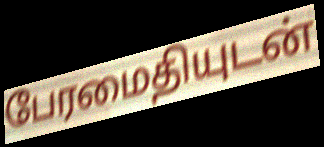
பேரமைதியுடன்